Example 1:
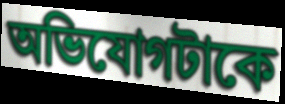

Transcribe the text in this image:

অভিযোগটাকে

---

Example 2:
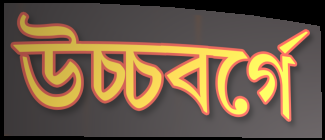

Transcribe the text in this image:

উচ্চবর্গে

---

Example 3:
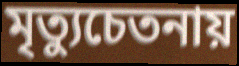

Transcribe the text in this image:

মৃত্যুচেতনায়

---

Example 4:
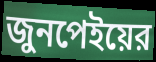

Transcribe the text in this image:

জুনপেইয়ের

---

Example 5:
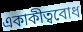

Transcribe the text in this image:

একাকীত্ববোধ